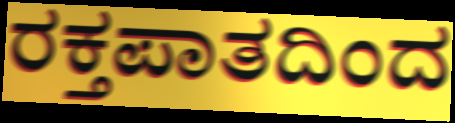
ರಕ್ತಪಾತದಿಂದ